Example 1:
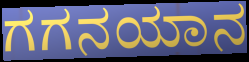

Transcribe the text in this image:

ಗಗನಯಾನ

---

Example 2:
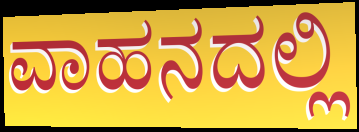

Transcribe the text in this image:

ವಾಹನದಲ್ಲಿ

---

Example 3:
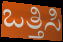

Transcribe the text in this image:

ಒತ್ತಿಸಿ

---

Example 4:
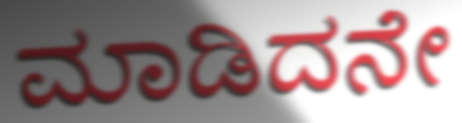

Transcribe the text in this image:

ಮಾಡಿದನೇ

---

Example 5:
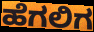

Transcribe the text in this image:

ಹೆಗಲಿಗ